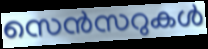
സെൻസറുകൾ